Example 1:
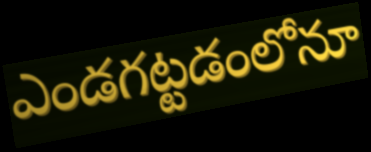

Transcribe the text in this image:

ఎండగట్టడంలోనూ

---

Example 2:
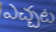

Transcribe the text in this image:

ఎచ్చట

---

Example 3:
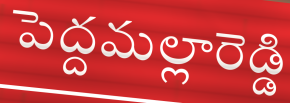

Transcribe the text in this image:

పెద్దమల్లారెడ్డి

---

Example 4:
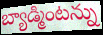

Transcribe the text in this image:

బ్యాడ్మింటన్ను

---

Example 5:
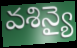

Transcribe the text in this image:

వశిన్యై